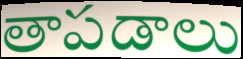
తాపడాలు